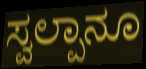
ಸ್ವಲ್ಪಾನೂ